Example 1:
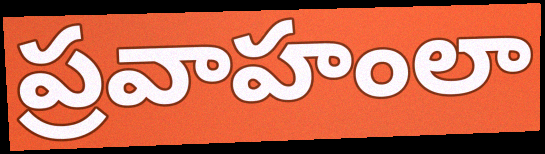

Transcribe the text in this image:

ప్రవాహంలా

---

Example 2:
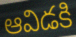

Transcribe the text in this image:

ఆవిడకి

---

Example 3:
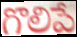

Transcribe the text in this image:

గొలిపే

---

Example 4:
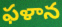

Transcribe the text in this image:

ఫళాన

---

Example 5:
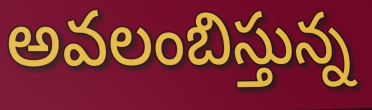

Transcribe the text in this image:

అవలంబిస్తున్న